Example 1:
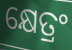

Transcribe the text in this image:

କ୍ଷେତ୍ରଂ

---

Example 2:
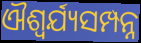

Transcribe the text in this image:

ଐଶ୍ୱର୍ଯ୍ୟସମ୍ପନ୍ନ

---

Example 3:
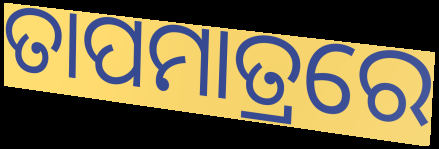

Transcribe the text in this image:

ତାପମାତ୍ରରେ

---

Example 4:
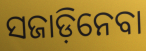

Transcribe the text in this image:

ସଜାଡ଼ିନେବା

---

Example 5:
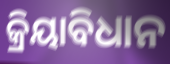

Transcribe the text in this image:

କ୍ରିୟାବିଧାନ